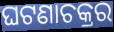
ଘଟଣାଚକ୍ରର